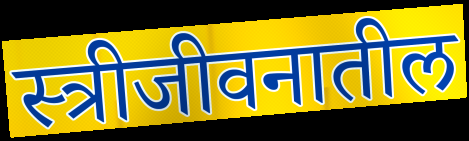
स्त्रीजीवनातील